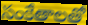
సంకేతాలతో